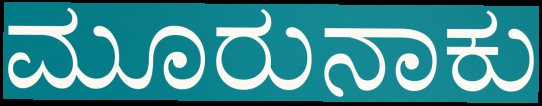
ಮೂರುನಾಕು